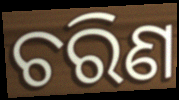
ଚରିଣ